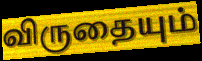
விருதையும்